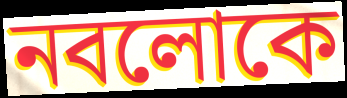
নবলোকে